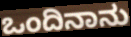
ಒಂದಿನಾನು